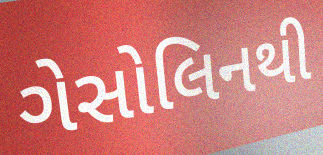
ગેસોલિનથી